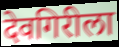
देवगिरीला